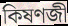
কিষণজী